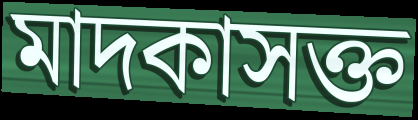
মাদকাসক্ত